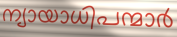
ന്യായാധിപന്മാർ